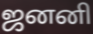
ஜனனி